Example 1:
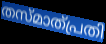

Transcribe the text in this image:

തസ്മാത്പ്രതി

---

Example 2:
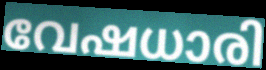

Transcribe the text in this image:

വേഷധാരി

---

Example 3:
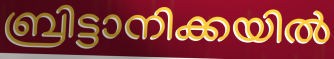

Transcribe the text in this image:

ബ്രിട്ടാനിക്കയിൽ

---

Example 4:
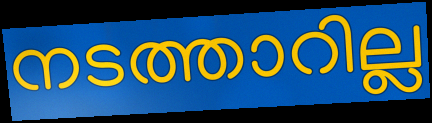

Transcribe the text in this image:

നടത്താറില്ല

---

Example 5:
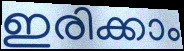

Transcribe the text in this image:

ഇരിക്കാം